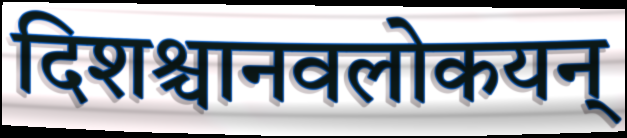
दिशश्चानवलोकयन्